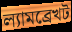
ল্যামব্রেখট